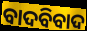
ବାଦବିବାଦ